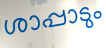
ശാപ്പാടും